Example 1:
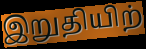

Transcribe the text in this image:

இறுதியிற்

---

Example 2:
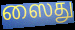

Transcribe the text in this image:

ஸைது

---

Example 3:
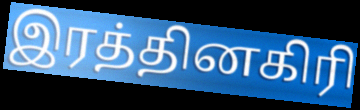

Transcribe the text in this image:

இரத்தினகிரி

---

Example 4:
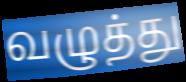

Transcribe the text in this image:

வழுத்து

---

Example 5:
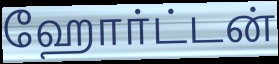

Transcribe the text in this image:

ஹோர்ட்டன்